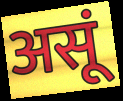
असूं